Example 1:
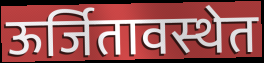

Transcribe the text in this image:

ऊर्जितावस्थेत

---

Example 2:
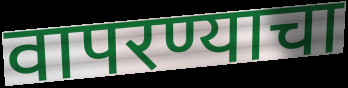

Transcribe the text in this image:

वापरण्याचा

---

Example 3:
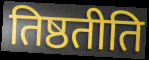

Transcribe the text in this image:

तिष्ठतीति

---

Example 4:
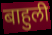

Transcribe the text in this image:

बाहुली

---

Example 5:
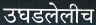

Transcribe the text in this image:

उघडलेलीच